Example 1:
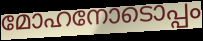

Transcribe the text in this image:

മോഹനോടൊപ്പം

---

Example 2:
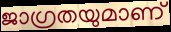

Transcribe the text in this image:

ജാഗ്രതയുമാണ്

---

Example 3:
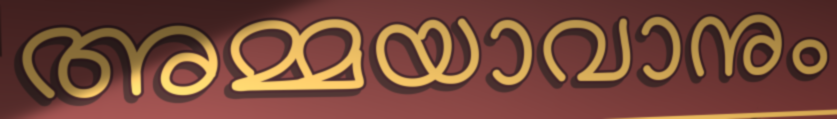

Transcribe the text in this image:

അമ്മയാവാനും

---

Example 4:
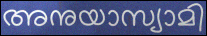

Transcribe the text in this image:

അനുയാസ്യാമി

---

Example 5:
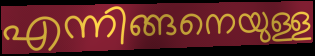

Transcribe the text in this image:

എന്നിങ്ങനെയുള്ള